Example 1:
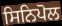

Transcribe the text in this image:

ਸਿਨਿਪੋਲ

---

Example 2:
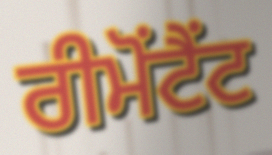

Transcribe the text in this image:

ਰੀਮੋਂਟੈਂਟ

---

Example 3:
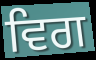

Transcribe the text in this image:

ਵਿਗ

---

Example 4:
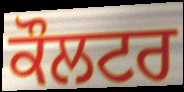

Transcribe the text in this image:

ਕੌਲਟਰ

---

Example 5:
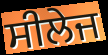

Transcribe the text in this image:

ਸੀਲੇਜ